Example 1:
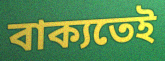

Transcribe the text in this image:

বাক্যতেই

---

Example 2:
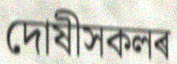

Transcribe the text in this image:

দোষীসকলৰ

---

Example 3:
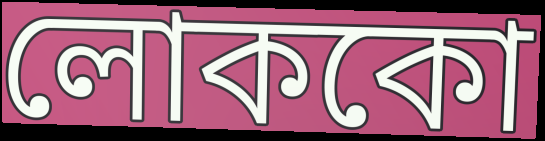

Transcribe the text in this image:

লোককো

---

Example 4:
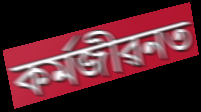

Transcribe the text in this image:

কৰ্মজীৱনত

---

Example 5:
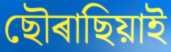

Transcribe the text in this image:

ছৌৰাছিয়াই